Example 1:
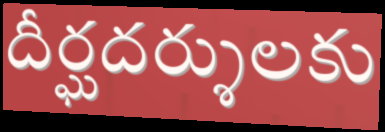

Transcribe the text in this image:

దీర్ఘదర్శులకు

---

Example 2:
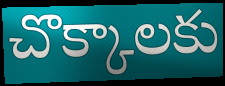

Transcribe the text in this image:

చొక్కాలకు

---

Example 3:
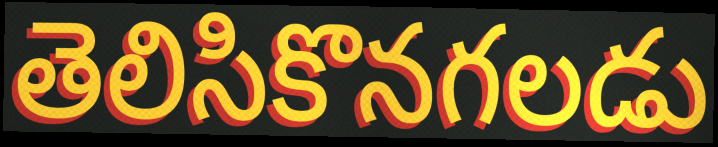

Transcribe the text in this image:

తెలిసికొనగలడు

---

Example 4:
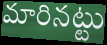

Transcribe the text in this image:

మారినట్టు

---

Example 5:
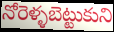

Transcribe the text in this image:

నోరెళ్ళబెట్టుకుని